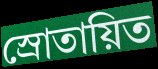
স্রোতায়িত